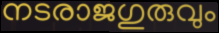
നടരാജഗുരുവും